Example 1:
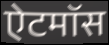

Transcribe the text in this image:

ऐटमॉस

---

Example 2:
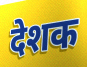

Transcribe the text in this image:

देशक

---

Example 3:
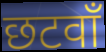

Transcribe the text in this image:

छटवाँ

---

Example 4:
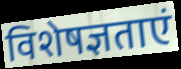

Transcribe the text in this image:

विशेषज्ञताएं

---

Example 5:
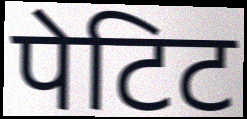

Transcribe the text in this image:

पेटिट